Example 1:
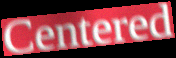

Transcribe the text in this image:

Centered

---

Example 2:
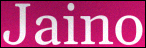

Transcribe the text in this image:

Jaino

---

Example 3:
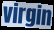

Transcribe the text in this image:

virgin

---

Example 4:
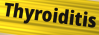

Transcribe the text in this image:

Thyroiditis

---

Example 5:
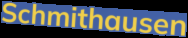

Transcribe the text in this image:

Schmithausen